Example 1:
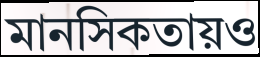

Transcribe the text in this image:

মানসিকতায়ও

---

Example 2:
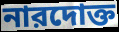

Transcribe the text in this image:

নারদোক্ত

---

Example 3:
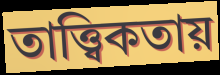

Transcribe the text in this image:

তাত্ত্বিকতায়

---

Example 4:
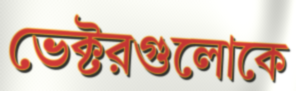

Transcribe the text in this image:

ভেক্টরগুলোকে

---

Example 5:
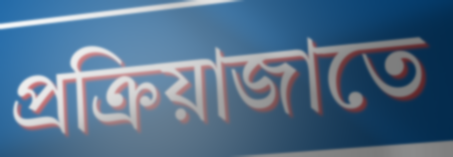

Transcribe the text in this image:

প্রক্রিয়াজাতে